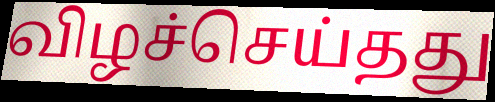
விழச்செய்தது